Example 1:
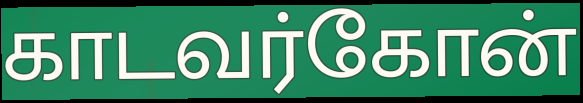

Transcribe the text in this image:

காடவர்கோன்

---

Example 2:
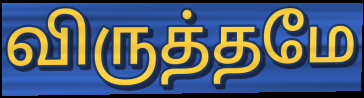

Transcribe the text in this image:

விருத்தமே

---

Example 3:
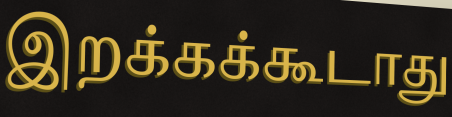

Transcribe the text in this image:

இறக்கக்கூடாது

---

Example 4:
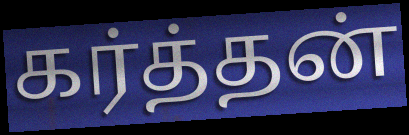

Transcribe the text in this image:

கர்த்தன்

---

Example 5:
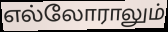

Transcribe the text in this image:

எல்லோராலும்